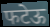
फटेऊ